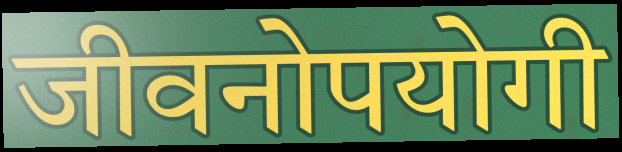
जीवनोपयोगी